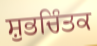
ਸ਼ੁਭਚਿੰਤਕ